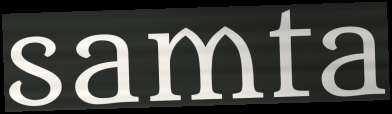
samta